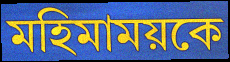
মহিমাময়কে